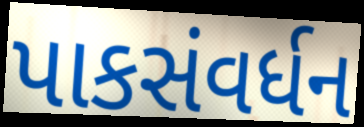
પાકસંવર્ધન